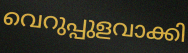
വെറുപ്പുളവാക്കി